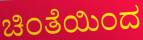
ಚಿಂತೆಯಿಂದ